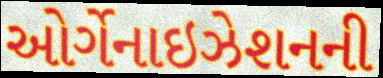
ઓર્ગેનાઇઝેશનની